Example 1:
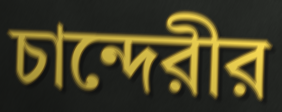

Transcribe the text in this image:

চান্দেরীর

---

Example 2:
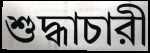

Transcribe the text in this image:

শুদ্ধাচারী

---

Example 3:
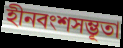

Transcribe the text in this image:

হীনবংশসম্ভূতা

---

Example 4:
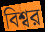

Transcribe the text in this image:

বিশ্বর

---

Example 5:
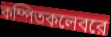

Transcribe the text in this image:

কম্পিতকলেবরে